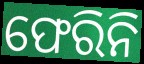
ଫେରିନି